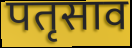
पतृसाव